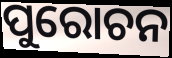
ପୁରୋଚନ